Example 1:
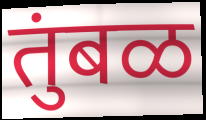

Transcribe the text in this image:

तुंबळ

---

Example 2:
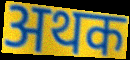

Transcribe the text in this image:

अथक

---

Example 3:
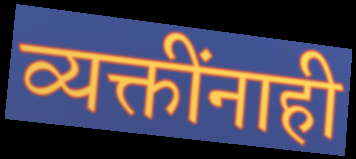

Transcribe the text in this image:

व्यक्तींनाही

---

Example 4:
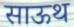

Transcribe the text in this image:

साऊथ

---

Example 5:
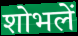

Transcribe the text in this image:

शोभलें